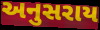
અનુસરાય